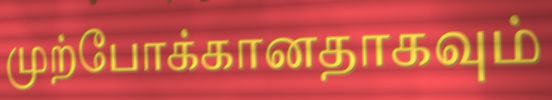
முற்போக்கானதாகவும்